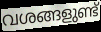
വശങ്ങളുണ്ട്